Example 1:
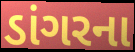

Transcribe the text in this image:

ડાંગરના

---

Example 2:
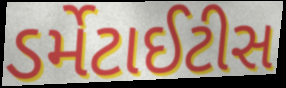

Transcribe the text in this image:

ડર્મેટાઈટીસ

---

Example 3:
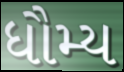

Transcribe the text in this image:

ધૌમ્ય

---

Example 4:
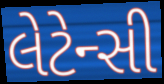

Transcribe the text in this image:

લેટેન્સી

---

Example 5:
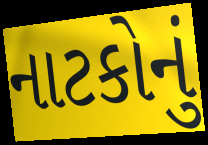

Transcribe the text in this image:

નાટકોનું